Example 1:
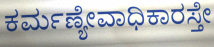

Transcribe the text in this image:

ಕರ್ಮಣ್ಯೇವಾಧಿಕಾರಸ್ತೇ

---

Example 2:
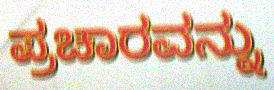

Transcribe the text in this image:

ಪ್ರಚಾರವನ್ನು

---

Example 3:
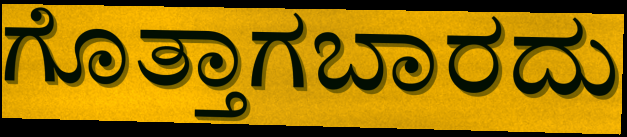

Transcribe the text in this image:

ಗೊತ್ತಾಗಬಾರದು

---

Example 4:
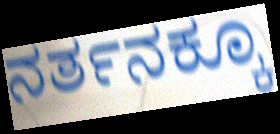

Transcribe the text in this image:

ನರ್ತನಕ್ಕೂ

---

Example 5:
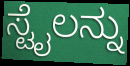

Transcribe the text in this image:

ಸ್ಟೈಲನ್ನು